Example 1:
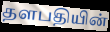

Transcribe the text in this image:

தளபதியின்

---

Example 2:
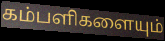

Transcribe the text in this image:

கம்பளிகளையும்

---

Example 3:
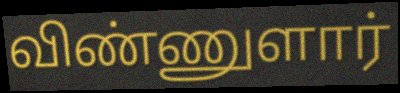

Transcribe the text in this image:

விண்ணுளார்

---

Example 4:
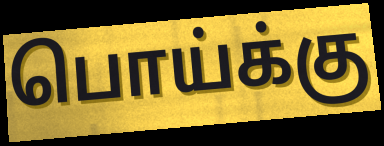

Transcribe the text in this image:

பொய்க்கு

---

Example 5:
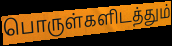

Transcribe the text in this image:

பொருள்களிடத்தும்